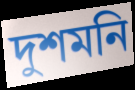
দুশমনি